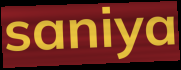
saniya